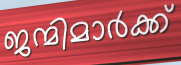
ജന്മിമാർക്ക്